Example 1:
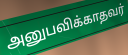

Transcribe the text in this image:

அனுபவிக்காதவர்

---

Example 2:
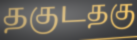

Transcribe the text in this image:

தகுடதகு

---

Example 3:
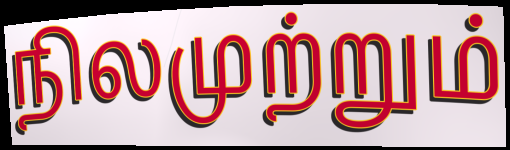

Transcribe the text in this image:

நிலமுற்றும்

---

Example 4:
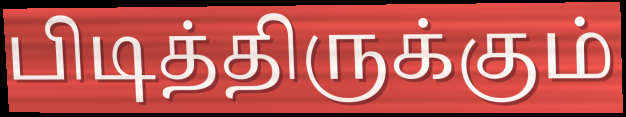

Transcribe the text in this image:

பிடித்திருக்கும்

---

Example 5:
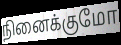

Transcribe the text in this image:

நினைக்குமோ